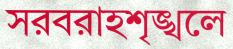
সরবরাহশৃঙ্খলে